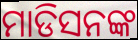
ମାଡିସନଙ୍କ